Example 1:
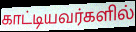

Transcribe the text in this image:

காட்டியவர்களில்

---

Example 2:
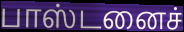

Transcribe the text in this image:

பாஸ்டனைச்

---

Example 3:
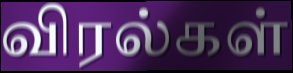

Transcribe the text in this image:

விரல்கள்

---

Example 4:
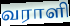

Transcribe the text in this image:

வராளி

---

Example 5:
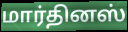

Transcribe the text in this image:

மார்தினஸ்